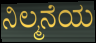
ನಿಲ್ಮನೆಯ